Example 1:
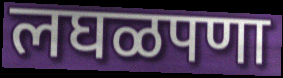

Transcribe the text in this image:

लघळपणा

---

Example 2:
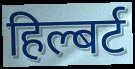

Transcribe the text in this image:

हिल्बर्ट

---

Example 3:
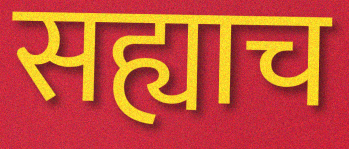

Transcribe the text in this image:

सह्याच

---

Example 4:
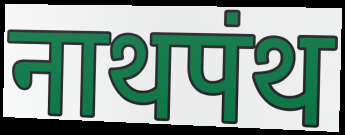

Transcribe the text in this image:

नाथपंथ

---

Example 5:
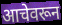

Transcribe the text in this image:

आचेवरून